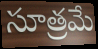
సూత్రమే